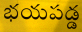
భయపడ్డ